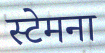
स्टेमना